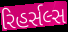
રિહર્સલ્સ